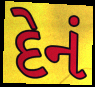
દેનં